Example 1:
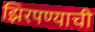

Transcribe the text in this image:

झिरपण्याची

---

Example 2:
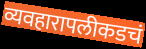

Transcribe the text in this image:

व्यवहारापलीकडचं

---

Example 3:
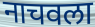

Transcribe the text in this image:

नाचवला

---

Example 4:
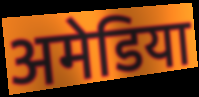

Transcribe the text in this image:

अमेडिया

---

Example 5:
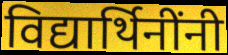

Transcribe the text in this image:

विद्यार्थिनींनी